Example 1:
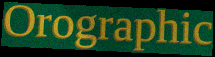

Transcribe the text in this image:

Orographic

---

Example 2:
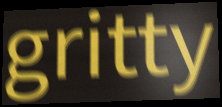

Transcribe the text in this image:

gritty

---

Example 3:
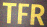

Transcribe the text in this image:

TFR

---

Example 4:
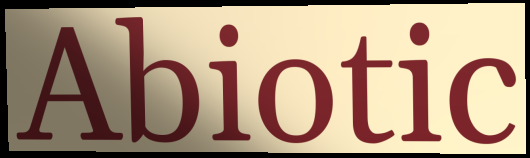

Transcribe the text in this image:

Abiotic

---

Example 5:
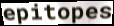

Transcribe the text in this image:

epitopes